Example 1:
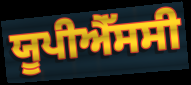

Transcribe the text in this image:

ਯੂਪੀਐੱਸਸੀ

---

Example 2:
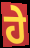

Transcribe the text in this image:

ਹੇ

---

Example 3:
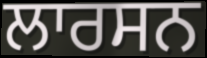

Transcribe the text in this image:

ਲਾਰਸਨ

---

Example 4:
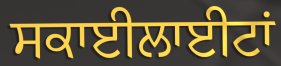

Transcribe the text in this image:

ਸਕਾਈਲਾਈਟਾਂ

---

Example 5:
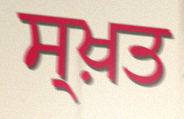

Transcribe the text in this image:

ਸ੍ਖ਼ਤ